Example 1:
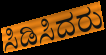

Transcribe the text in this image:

ಸಿಡಿಸಿದರು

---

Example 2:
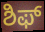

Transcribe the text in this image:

ಶಿಫ್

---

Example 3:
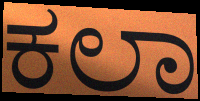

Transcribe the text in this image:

ಕಲಾ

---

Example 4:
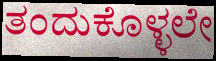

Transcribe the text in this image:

ತಂದುಕೊಳ್ಳಲೇ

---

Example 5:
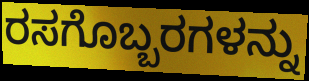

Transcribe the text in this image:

ರಸಗೊಬ್ಬರಗಳನ್ನು